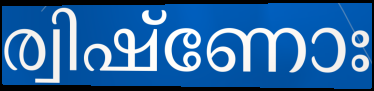
ര്വിഷ്ണോഃ